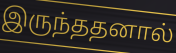
இருந்ததனால்